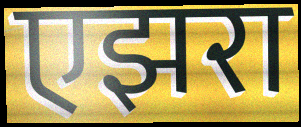
एझरा